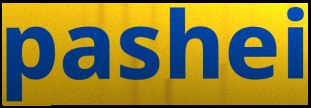
pashei